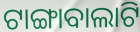
ଟାଙ୍ଗାବାଲାଟି